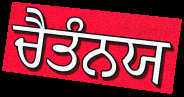
ਚੈਤੰਨਯ